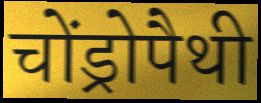
चोंड्रोपैथी